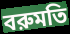
বরুমতি